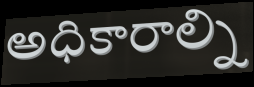
అధికారాల్ని